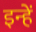
इन्हें